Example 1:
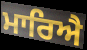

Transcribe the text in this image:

ਮਾਰਿਐ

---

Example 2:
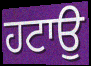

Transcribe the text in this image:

ਹਟਾਉ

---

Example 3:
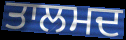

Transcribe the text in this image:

ਤਾਲਮਦ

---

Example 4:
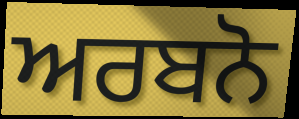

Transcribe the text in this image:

ਅਰਬਨੋ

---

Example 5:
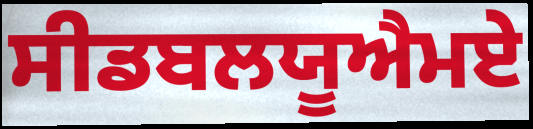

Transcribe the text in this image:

ਸੀਡਬਲਯੂਐਮਏ